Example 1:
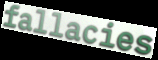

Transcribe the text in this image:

fallacies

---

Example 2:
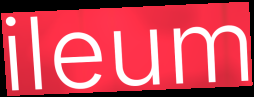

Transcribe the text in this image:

ileum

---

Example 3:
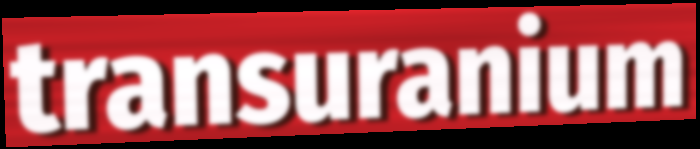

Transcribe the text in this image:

transuranium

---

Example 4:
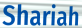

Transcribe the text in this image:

Shariah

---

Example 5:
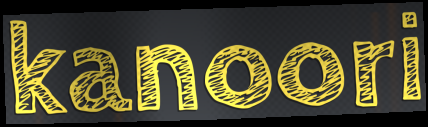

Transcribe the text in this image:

kanoori